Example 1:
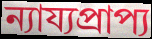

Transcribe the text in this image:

ন্যায্যপ্রাপ্য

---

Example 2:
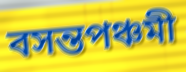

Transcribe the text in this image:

বসন্তপঞ্চমী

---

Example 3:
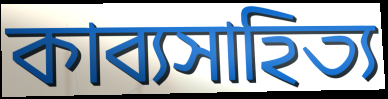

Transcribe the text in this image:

কাব্যসাহিত্য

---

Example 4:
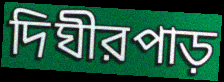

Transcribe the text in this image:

দিঘীরপাড়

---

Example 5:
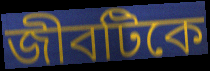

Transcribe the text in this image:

জীবটিকে